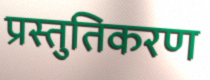
प्रस्तुतिकरण